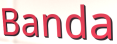
Banda